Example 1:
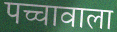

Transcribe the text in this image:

पच्चावाला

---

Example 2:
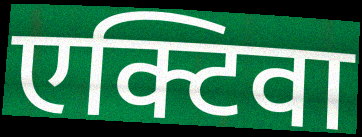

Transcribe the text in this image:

एक्टिवा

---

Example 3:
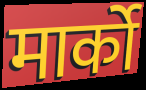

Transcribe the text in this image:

मार्को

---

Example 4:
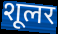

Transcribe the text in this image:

शूलर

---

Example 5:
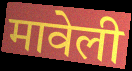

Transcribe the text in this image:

मावेली